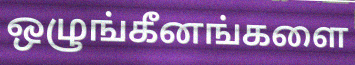
ஒழுங்கீனங்களை